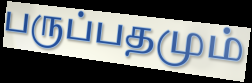
பருப்பதமும்